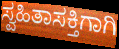
ಸ್ವಹಿತಾಸಕ್ತಿಗಾಗಿ